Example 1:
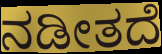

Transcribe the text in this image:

ನಡೀತದೆ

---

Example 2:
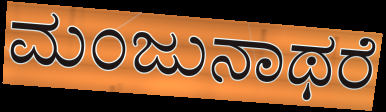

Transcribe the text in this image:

ಮಂಜುನಾಥರೆ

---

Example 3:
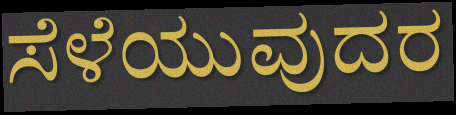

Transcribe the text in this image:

ಸೆಳೆಯುವುದರ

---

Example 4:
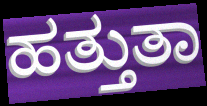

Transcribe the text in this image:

ಹತ್ತುತಾ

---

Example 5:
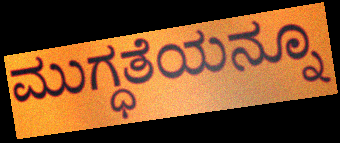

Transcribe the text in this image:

ಮುಗ್ಧತೆಯನ್ನೂ